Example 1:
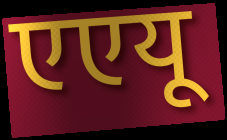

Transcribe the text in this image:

एएयू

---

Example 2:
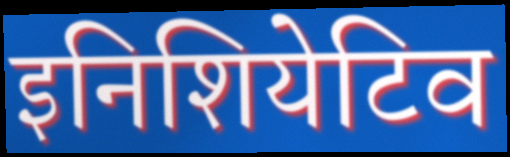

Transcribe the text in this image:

इनिशियेटिव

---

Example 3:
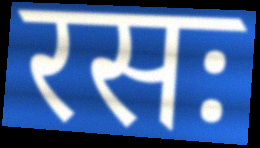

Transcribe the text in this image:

रसः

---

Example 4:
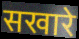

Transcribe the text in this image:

सखारे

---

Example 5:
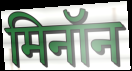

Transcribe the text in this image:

मिनॉन